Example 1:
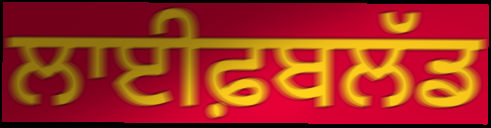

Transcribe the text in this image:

ਲਾਈਫ਼ਬਲੱਡ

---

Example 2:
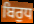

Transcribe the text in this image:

ਬਿਰੁਧ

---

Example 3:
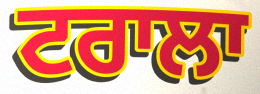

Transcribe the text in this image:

ਟਰਾਲਾ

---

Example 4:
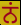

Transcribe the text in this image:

ਨਂ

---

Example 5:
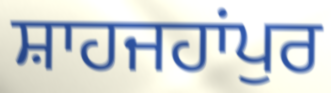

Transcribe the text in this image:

ਸ਼ਾਹਜਹਾਂਪੁਰ